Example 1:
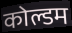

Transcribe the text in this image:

कोल्डम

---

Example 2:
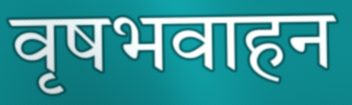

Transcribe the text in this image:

वृषभवाहन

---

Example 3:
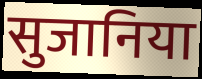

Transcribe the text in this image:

सुजानिया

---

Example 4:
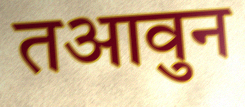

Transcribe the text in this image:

तआवुन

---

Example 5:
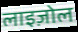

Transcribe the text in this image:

लाइज़ोल